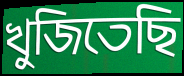
খুজিতেছি